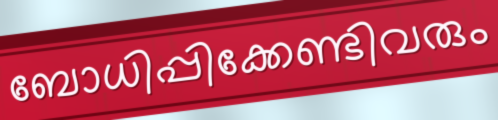
ബോധിപ്പിക്കേണ്ടിവരും